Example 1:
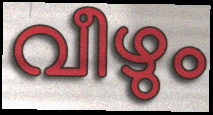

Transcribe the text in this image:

വീഴും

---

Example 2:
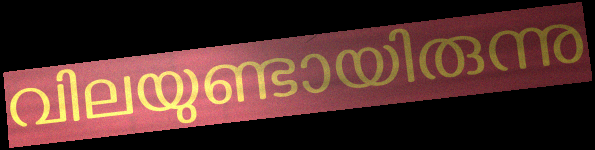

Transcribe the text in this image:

വിലയുണ്ടായിരുന്നു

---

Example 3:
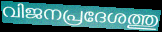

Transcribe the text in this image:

വിജനപ്രദേശത്തു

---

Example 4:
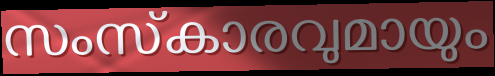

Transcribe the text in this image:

സംസ്‌കാരവുമായും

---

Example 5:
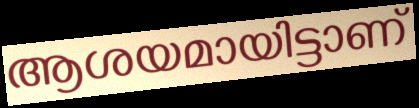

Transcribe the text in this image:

ആശയമായിട്ടാണ്